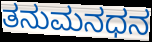
ತನುಮನಧನ